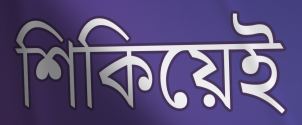
শিকিয়েই